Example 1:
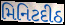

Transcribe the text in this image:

મિનિટદીઠ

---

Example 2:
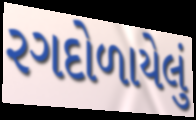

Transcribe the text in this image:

રગદોળાયેલું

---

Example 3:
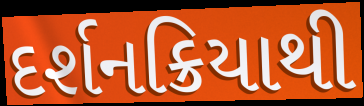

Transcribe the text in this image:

દર્શનક્રિયાથી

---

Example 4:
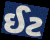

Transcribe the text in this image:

ઈટ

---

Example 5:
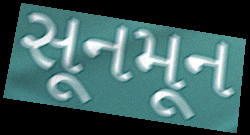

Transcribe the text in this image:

સૂનમૂન